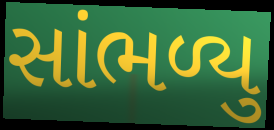
સાંભળ્યુ